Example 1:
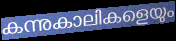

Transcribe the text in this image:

കന്നുകാലികളെയും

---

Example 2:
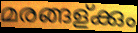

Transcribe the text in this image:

മരങ്ങള്ക്കും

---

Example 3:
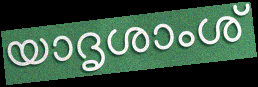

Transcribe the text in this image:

യാദൃശാംശ്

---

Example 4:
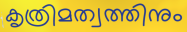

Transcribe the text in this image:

കൃത്രിമത്വത്തിനും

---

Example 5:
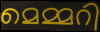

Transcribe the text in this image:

മെമ്മറി